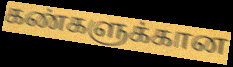
கண்களுக்கான